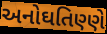
અનોઘતિણ્ણે